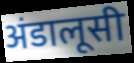
अंडालूसी